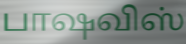
பாஷவிஸ்